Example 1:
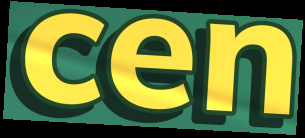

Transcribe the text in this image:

cen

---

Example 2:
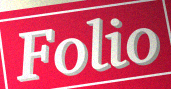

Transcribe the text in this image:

Folio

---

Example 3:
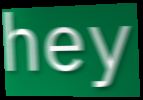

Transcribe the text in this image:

hey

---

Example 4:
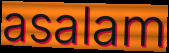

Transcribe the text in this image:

asalam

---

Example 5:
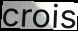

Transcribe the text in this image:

crois